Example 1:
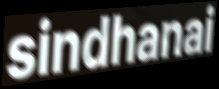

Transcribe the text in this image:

sindhanai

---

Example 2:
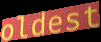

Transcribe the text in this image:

oldest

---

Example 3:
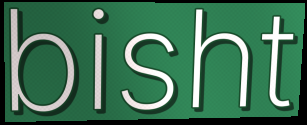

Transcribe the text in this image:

bisht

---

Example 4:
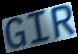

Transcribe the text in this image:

GIR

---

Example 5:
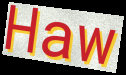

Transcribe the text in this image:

Haw